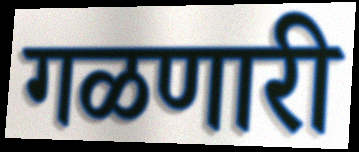
गळणारी